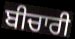
ਬੀਚਾਰੀ